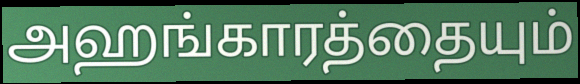
அஹங்காரத்தையும்